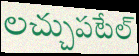
లచ్చుపటేల్